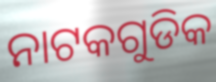
ନାଟକଗୁଡିକ